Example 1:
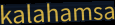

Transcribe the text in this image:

kalahamsa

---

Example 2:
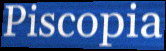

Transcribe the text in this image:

Piscopia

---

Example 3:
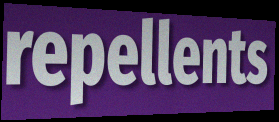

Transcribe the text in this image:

repellents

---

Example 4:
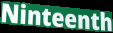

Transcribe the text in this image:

Ninteenth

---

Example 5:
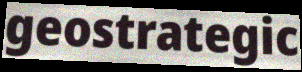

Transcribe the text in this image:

geostrategic